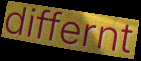
differnt